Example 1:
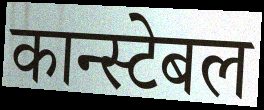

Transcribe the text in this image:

कान्स्टेबल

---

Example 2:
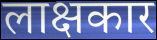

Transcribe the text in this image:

लाक्षकार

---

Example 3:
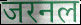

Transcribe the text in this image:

जरनल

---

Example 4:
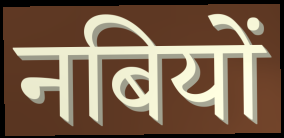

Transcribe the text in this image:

नबियों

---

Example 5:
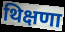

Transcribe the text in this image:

थिक्षणा